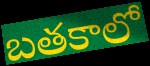
బతకాలో